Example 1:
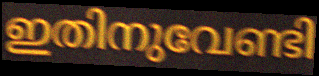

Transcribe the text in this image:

ഇതിനുവേണ്ടി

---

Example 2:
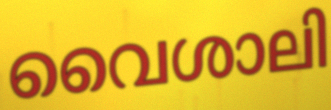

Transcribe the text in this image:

വൈശാലി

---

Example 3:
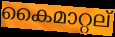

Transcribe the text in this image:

കൈമാറ്റല്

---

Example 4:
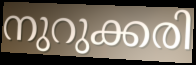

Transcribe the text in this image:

നുറുക്കരി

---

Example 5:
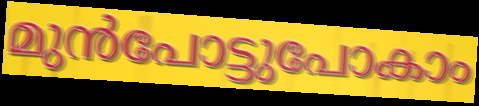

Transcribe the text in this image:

മുൻപോട്ടുപോകാം